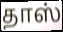
தாஸ்